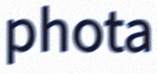
phota